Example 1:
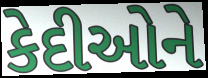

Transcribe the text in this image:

કેદીઓને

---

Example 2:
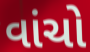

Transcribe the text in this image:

વાંચો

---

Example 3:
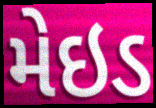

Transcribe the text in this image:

મેઇડ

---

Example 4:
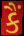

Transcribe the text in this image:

કૈં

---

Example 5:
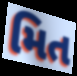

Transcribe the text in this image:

મિત